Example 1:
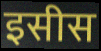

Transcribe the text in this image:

इसीस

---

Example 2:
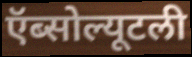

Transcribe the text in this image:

ऍब्सोल्यूटली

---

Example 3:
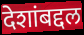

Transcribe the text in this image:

देशांबद्दल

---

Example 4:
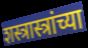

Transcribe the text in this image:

शस्त्रास्त्रांच्या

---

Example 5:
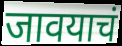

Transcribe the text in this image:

जावयाचं